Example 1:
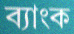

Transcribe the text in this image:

ব্যাংক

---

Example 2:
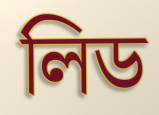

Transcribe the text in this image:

লিড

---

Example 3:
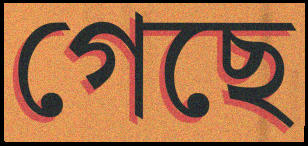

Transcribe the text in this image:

গেছে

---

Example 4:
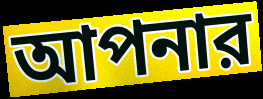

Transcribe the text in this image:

আপনার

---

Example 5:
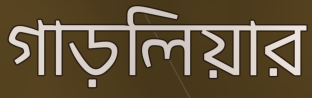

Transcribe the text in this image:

গাড়লিয়ার